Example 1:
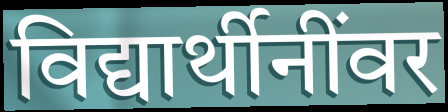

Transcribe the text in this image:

विद्यार्थीनींवर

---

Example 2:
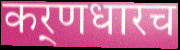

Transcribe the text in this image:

कर्णधारच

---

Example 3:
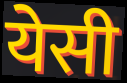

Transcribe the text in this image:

येसी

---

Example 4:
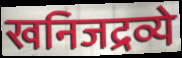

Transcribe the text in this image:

खनिजद्रव्ये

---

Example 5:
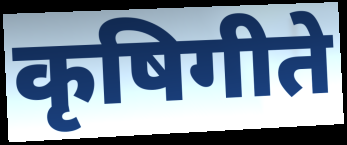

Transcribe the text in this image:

कृषिगीते